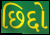
છિદ્દો